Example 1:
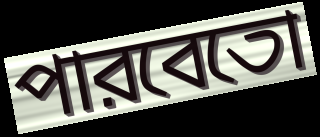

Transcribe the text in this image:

পারবেতো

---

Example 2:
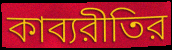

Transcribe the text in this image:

কাব্যরীতির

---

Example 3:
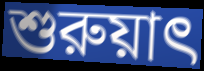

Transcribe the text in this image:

শুরুয়াৎ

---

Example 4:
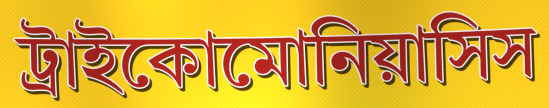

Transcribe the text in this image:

ট্রাইকোমোনিয়াসিস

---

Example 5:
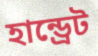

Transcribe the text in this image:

হান্ড্রেট